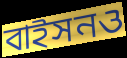
বাইসনও